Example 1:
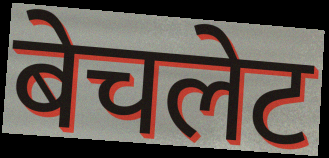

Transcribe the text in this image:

बेचलेट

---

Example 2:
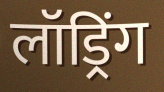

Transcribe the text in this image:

लॉड्रिंग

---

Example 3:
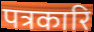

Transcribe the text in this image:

पत्रकारि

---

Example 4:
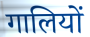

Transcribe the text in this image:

गालियों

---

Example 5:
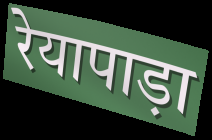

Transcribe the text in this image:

रेयापाड़ा